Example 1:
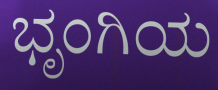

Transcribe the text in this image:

ಭೃಂಗಿಯ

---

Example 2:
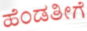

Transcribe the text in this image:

ಹೆಂಡತೀಗೆ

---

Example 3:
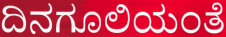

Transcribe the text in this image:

ದಿನಗೂಲಿಯಂತೆ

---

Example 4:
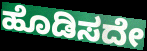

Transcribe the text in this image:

ಹೊಡಿಸದೇ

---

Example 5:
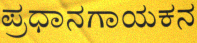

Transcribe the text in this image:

ಪ್ರಧಾನಗಾಯಕನ